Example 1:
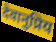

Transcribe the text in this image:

देवानुप्रिय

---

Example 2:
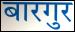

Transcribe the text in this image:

बारगुर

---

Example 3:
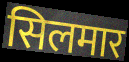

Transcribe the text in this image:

सिलमार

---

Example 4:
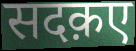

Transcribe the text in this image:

सदक़ए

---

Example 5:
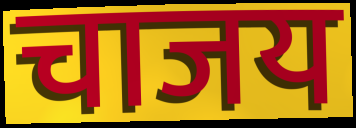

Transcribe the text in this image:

चाजय